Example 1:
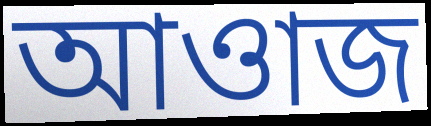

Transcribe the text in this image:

আওাজ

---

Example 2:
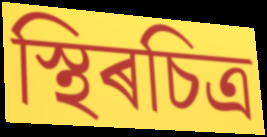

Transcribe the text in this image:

স্থিৰচিত্ৰ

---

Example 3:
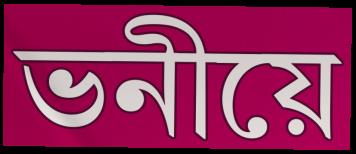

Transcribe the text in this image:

ভনীয়ে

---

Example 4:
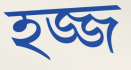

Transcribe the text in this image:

হজ্জ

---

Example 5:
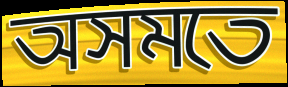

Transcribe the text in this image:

অসমতে